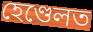
হেণ্ডেলত